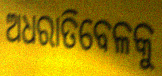
ଅଧରାତିବେଳକୁ